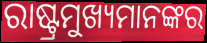
ରାଷ୍ଟ୍ରମୁଖ୍ୟମାନଙ୍କର